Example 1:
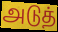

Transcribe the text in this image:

அடுத்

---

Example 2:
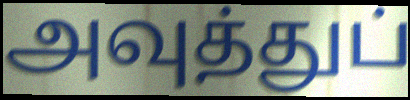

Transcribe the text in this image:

அவுத்துப்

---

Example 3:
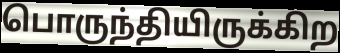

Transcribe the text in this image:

பொருந்தியிருக்கிற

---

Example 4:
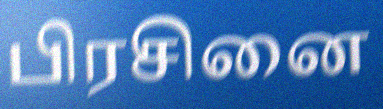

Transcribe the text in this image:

பிரசினை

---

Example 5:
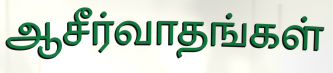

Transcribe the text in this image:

ஆசீர்வாதங்கள்